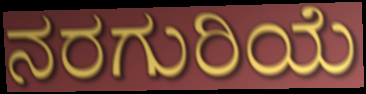
ನರಗುರಿಯೆ